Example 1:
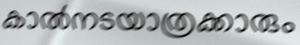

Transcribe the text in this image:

കാൽനടയാത്രക്കാരും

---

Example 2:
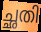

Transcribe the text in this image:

ച്ഛതി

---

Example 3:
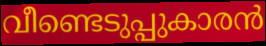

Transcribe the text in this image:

വീണ്ടെടുപ്പുകാരൻ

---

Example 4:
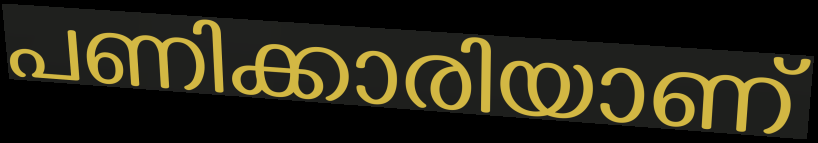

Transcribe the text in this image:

പണിക്കാരിയാണ്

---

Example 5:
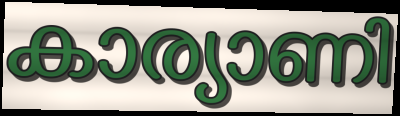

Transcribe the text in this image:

കാര്യാണി